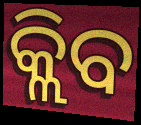
କ୍ଲିବ